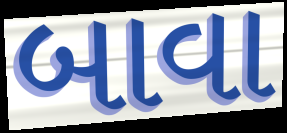
બાવા